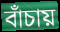
বাঁচায়